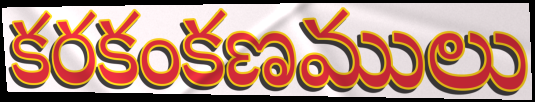
కరకంకణములు